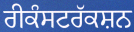
ਰੀਕੰਸਟਰੱਕਸ਼ਨ